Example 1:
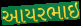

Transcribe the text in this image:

આયરભાઇ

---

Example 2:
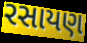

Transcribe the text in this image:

રસાયણ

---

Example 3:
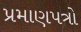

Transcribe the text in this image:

પ્રમાણપત્રો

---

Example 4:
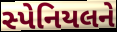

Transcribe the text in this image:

સ્પેનિયલને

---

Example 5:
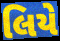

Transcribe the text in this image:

લિયે